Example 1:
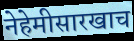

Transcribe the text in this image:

नेहेमीसारखाच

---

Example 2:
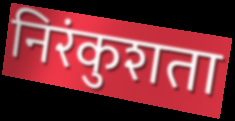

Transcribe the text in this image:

निरंकुशता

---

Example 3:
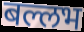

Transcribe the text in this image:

बल्लभ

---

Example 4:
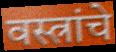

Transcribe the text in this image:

वस्त्रांचे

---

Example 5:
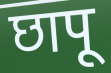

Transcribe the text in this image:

छापू